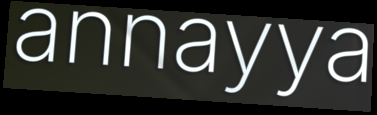
annayya